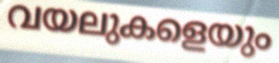
വയലുകളെയും